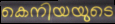
കെനിയയുടെ